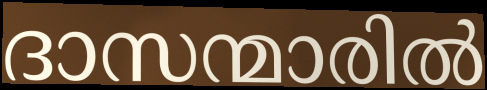
ദാസന്മാരിൽ